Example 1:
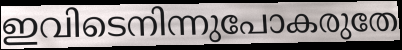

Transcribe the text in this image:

ഇവിടെനിന്നുപോകരുതേ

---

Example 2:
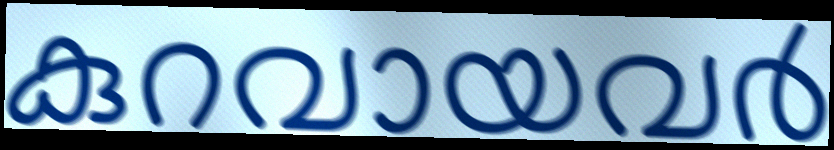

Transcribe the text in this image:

കുറവായവർ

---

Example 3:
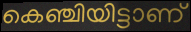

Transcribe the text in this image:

കെഞ്ചിയിട്ടാണ്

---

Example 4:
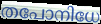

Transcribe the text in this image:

തപോനിധേ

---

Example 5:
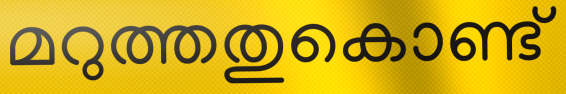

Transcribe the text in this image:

മറുത്തതുകൊണ്ട്